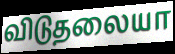
விடுதலையா